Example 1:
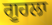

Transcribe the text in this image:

ਗੂਹਲਾ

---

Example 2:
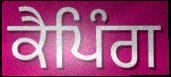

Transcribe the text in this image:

ਕੈਪਿੰਗ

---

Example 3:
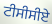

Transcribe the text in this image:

ਟੀਸੀਸੀਏ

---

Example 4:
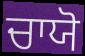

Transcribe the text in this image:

ਚਾਯੋ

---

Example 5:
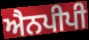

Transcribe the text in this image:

ਐਨਪੀਪੀ